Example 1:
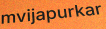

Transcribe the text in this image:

mvijapurkar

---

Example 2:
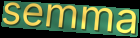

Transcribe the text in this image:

semma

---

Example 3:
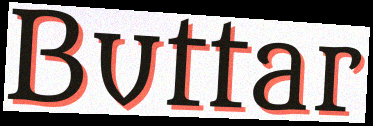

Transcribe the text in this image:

Buttar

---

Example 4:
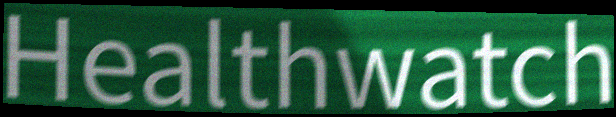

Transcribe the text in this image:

Healthwatch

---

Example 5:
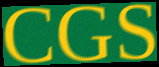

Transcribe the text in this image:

CGS